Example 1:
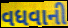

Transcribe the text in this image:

વધવાની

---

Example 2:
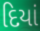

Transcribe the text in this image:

દિયાં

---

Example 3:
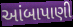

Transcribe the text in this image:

આંબાપાણી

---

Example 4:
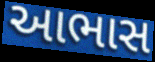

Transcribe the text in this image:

આભાસ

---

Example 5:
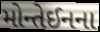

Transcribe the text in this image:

મોન્તેઈનના